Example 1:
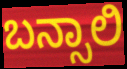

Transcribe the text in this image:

ಬನ್ಸಾಲಿ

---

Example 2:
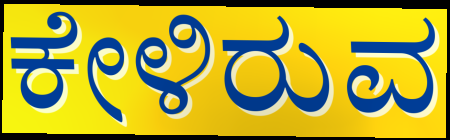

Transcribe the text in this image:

ಕೇಳಿರುವ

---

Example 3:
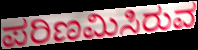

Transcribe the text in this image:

ಪರಿಣಮಿಸಿರುವ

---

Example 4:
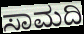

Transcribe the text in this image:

ಸಾಮದಿ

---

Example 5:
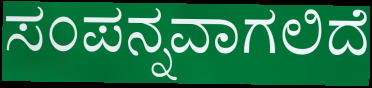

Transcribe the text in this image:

ಸಂಪನ್ನವಾಗಲಿದೆ